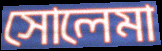
সোলেমা